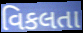
વિકલતા